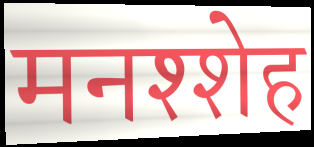
मनश्शेह